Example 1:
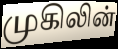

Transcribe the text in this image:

முகிலின்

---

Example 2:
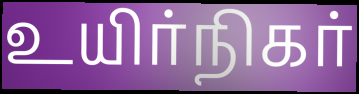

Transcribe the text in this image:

உயிர்நிகர்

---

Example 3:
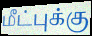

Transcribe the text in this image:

மீட்புக்கு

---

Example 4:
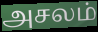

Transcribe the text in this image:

அசலம்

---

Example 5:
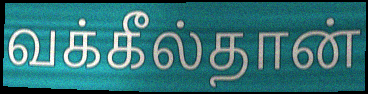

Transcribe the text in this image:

வக்கீல்தான்